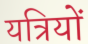
यत्रियों